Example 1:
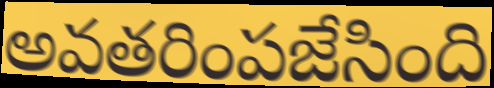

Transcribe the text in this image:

అవతరింపజేసింది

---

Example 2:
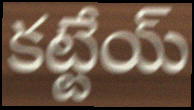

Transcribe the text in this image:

కట్టేయ్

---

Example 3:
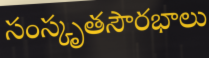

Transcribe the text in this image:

సంస్కృతసౌరభాలు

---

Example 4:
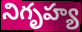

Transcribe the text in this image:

నిగృహ్య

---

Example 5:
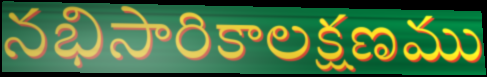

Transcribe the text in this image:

నభిసారికాలక్షణము